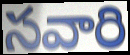
సవారి